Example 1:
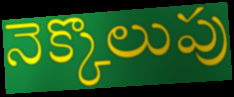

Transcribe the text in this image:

నెక్కొలుపు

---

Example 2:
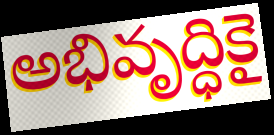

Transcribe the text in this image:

అభివృద్ధికై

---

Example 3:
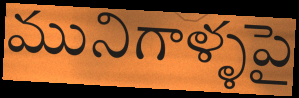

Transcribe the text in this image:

మునిగాళ్ళపై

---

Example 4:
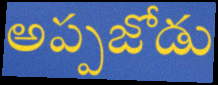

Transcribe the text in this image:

అప్పజోడు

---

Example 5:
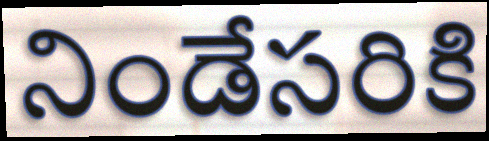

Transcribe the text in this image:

నిండేసరికి